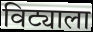
विट्याला